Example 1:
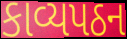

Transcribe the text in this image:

કાવ્યપઠન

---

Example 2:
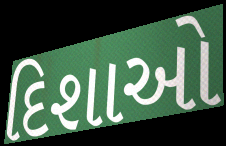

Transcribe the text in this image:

દિશાઓ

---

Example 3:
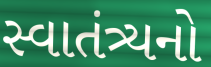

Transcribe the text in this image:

સ્વાતંત્ર્યનો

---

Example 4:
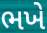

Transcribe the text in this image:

ભખે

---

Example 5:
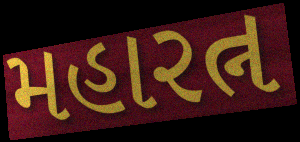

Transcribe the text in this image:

મહારત્ન